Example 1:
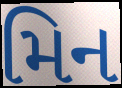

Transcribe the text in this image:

મિન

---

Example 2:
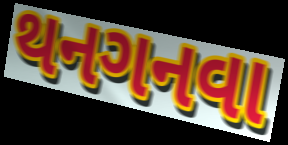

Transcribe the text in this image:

થનગનવા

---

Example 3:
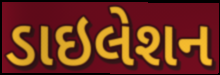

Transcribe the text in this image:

ડાઇલેશન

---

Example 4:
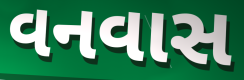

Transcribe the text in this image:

વનવાસ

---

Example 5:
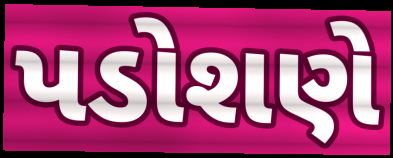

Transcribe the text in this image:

પડોશણે